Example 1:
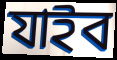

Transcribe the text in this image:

যাইব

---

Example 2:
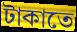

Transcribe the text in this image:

টাকাতে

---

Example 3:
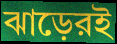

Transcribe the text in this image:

ঝাড়েরই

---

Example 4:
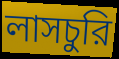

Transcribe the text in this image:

লাসচুরি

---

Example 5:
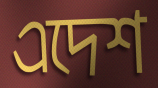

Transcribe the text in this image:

এদেশ